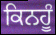
ਕਿਨਹੂੰ